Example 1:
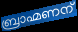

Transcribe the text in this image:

ബ്രാഹ്മണന്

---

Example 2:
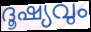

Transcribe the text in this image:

ദൂഷ്യവും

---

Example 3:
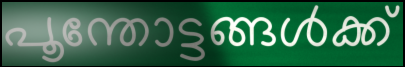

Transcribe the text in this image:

പൂന്തോട്ടങ്ങൾക്ക്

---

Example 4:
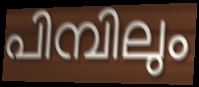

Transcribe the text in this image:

പിമ്പിലും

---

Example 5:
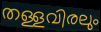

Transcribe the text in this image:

തള്ളവിരലും